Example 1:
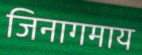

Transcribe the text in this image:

जिनागमाय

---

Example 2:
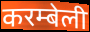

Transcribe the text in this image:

करम्बेली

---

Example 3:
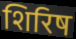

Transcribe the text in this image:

शिरिष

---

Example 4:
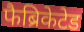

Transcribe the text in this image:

फैब्रिकेटेड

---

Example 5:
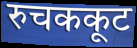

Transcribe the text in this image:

रुचककूट